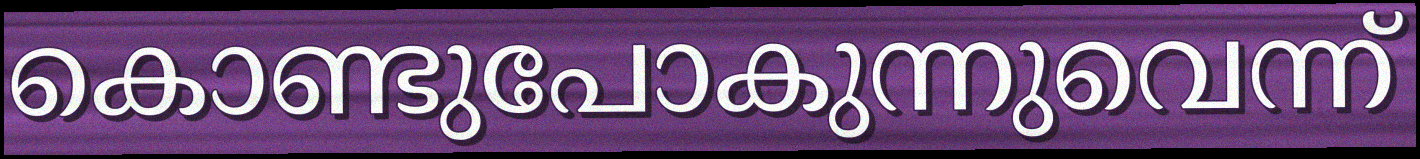
കൊണ്ടുപോകുന്നുവെന്ന്